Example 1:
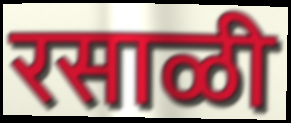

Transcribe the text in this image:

रसाळी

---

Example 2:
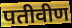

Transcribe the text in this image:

पतीवीण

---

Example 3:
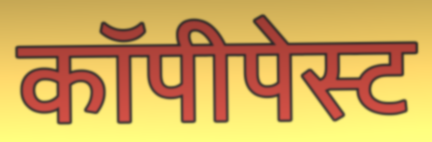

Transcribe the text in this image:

कॉपीपेस्ट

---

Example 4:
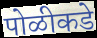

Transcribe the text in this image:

पोळीकडे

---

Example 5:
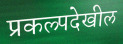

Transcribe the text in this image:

प्रकल्पदेखील